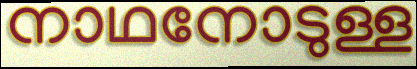
നാഥനോടുള്ള